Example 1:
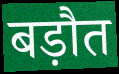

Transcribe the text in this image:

बड़ौत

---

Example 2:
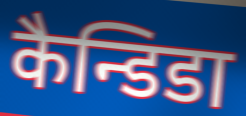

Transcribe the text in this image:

कैन्डिडा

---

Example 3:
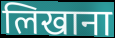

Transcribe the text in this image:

लिखाना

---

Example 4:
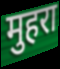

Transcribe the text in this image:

मुहरा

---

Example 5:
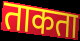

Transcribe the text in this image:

ताकता